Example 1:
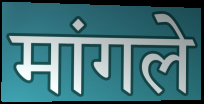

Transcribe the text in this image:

मांगले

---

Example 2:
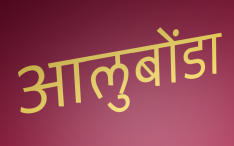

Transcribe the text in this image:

आलुबोंडा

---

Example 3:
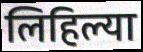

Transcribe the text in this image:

लिहिल्या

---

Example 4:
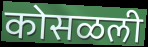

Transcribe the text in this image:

कोसळली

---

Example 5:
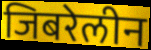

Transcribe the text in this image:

जिबरेलीन